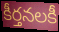
కీర్తనలకీ